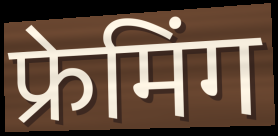
फ्रेमिंग